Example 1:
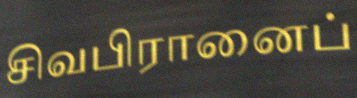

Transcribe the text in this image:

சிவபிரானைப்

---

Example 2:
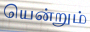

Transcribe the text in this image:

யென்றும்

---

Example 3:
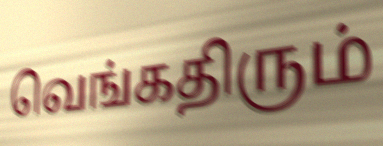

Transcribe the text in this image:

வெங்கதிரும்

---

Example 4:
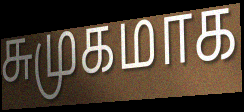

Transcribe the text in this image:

சுமுகமாக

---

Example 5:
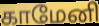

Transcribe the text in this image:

காமேனி